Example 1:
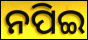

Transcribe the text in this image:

ନପିଇ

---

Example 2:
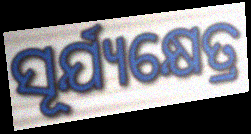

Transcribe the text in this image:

ସୂର୍ଯ୍ୟକ୍ଷେତ୍ର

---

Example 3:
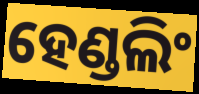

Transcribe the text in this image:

ହେଣ୍ଡଲିଂ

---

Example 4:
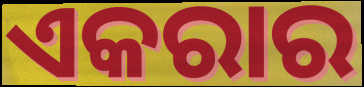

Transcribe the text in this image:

ଏକରାର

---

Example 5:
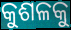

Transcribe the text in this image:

କୁଶଳକୁ